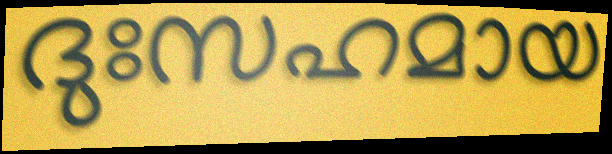
ദുഃസഹമായ